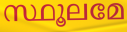
സ്ഥൂലമേ